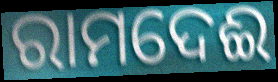
ରାମଦେଈ